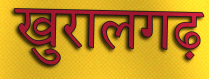
खुरालगढ़